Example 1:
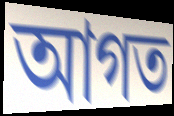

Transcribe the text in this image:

আগত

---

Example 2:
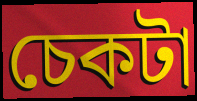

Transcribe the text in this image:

চেকটা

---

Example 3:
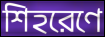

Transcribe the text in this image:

শিহরেণে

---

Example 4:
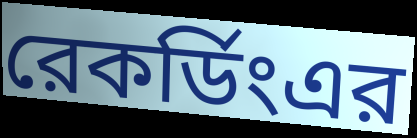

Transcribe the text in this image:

রেকর্ডিংএর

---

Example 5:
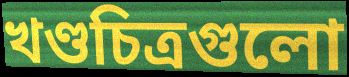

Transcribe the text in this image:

খণ্ডচিত্রগুলো